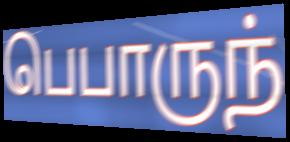
பெபாருந்